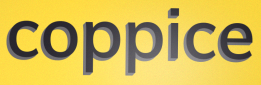
coppice